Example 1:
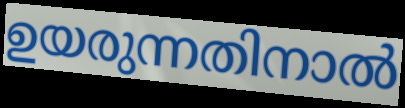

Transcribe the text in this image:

ഉയരുന്നതിനാൽ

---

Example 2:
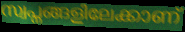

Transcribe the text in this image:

സ്വപ്നങ്ങളിലേക്കാണ്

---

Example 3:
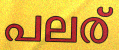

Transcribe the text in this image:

പലര്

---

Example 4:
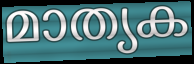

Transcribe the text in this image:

മാത്യക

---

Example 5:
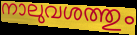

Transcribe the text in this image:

നാലുവശത്തും